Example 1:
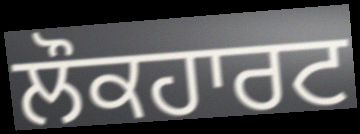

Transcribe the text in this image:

ਲੌਕਹਾਰਟ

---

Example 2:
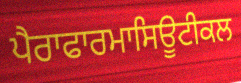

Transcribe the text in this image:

ਪੈਰਾਫਾਰਮਾਸਿਊਟੀਕਲ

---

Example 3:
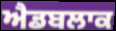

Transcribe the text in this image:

ਐਡਬਲਾਕ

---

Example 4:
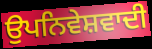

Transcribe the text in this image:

ਉਪਨਿਵੇਸ਼ਵਾਦੀ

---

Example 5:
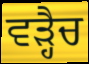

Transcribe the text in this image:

ਵੜ੍ਹੈਚ